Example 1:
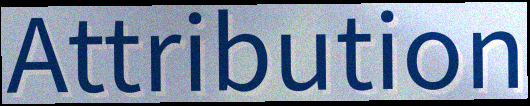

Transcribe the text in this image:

Attribution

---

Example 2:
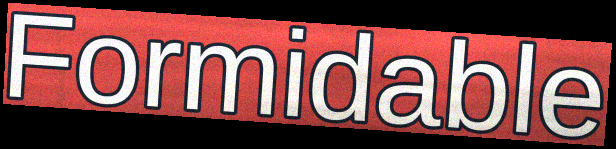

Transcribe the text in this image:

Formidable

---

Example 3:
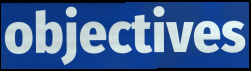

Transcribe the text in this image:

objectives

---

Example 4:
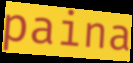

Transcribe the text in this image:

paina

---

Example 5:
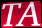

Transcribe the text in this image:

TA